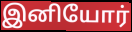
இனியோர்